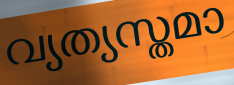
വ്യത്യസ്തമാ